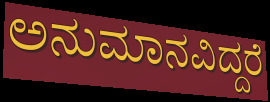
ಅನುಮಾನವಿದ್ದರೆ